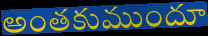
అంతకుముందూ